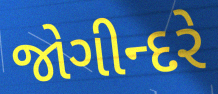
જોગીન્દરે